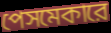
পেসমেকারে